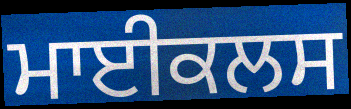
ਮਾਈਕਲਸ